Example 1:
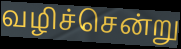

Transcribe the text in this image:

வழிச்சென்று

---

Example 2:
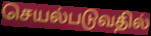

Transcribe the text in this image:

செயல்படுவதில்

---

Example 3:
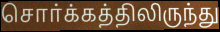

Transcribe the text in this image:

சொர்க்கத்திலிருந்து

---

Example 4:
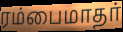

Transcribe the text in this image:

ரம்பைமாதர்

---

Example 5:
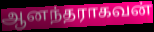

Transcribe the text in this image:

ஆனந்தராகவன்